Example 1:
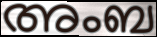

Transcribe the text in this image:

അംബ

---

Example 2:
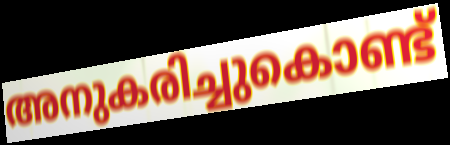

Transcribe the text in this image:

അനുകരിച്ചുകൊണ്ട്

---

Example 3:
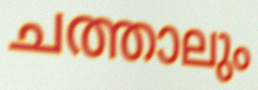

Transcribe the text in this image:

ചത്താലും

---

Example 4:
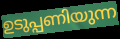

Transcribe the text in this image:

ഉടുപ്പണിയുന്ന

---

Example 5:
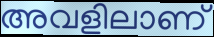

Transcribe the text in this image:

അവളിലാണ്